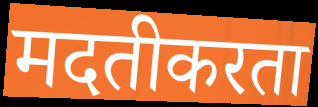
मदतीकरता